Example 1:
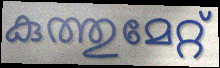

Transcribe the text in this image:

കുത്തുമേറ്റ്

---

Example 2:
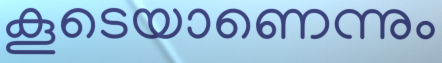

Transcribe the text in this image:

കൂടെയാണെന്നും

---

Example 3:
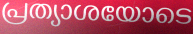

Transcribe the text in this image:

പ്രത്യാശയോടെ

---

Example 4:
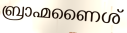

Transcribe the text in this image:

ബ്രാഹ്മണൈശ്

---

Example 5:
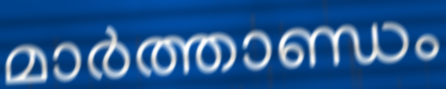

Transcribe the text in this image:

മാർത്താണ്ഡം